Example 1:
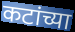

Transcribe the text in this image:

कटांच्या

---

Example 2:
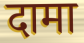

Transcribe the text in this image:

दामा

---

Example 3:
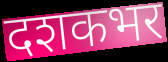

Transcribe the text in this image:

दशकभर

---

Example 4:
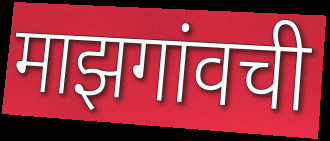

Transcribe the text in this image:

माझगांवची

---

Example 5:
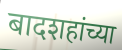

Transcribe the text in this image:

बादशहांच्या